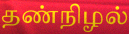
தண்நிழல்